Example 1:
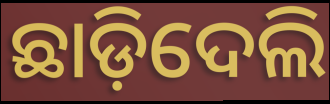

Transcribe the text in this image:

ଛାଡ଼ିଦେଲି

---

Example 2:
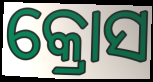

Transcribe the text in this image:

କ୍ରୋସ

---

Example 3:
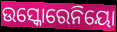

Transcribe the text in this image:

ଉସ୍କୋରେନିୟୋ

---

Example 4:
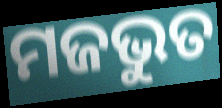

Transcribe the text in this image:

ମଜଭୁତ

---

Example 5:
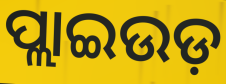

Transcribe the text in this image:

ପ୍ଲାଇଉଡ଼